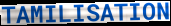
TAMILISATION